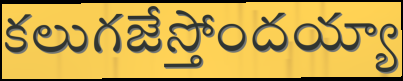
కలుగజేస్తోందయ్యా